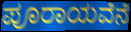
ಪೂರಾಯವೆನೆ